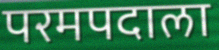
परमपदाला